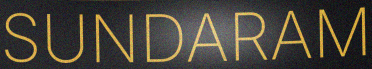
SUNDARAM